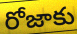
రోజాకు